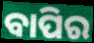
ବାପିର